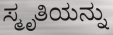
ಸ್ಮೃತಿಯನ್ನು